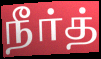
நீர்த்